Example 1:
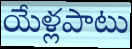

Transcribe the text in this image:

యేళ్లపాటు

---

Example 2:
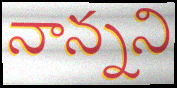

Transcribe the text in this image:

నాన్నని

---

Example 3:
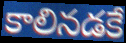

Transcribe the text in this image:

కాలినడకే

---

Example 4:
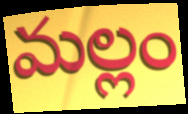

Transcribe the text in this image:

మల్లం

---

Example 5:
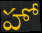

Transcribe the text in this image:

హో